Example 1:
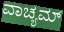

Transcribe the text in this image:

ವಾಚ್ಯಮ್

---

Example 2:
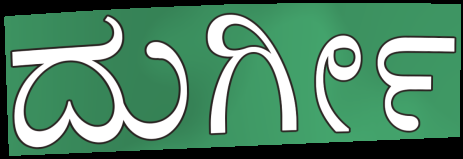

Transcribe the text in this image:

ದುರ್ಗೀ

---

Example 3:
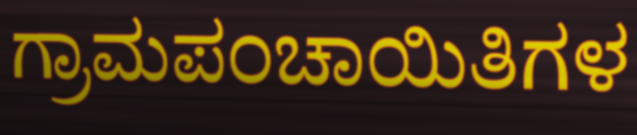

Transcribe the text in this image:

ಗ್ರಾಮಪಂಚಾಯಿತಿಗಳ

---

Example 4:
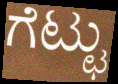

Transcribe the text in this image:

ಗೆಟ್ಟು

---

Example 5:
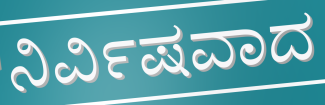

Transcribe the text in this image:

ನಿರ್ವಿಷವಾದ